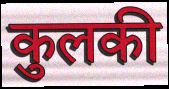
कुलकी